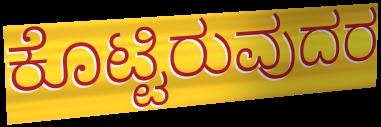
ಕೊಟ್ಟಿರುವುದರ